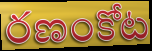
రణంకోట